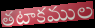
తటాకముల